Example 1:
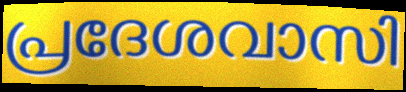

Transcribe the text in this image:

പ്രദേശവാസി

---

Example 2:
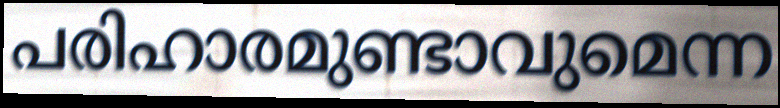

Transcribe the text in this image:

പരിഹാരമുണ്ടാവുമെന്ന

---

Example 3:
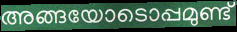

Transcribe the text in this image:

അങ്ങയോടൊപ്പമുണ്ട്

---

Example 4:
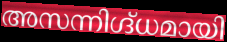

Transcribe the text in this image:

അസന്നിഗ്ദ്ധമായി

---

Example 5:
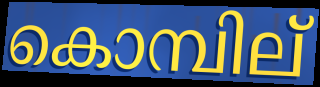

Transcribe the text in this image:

കൊമ്പില്